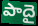
పాదై